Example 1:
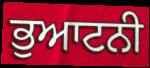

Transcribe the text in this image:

ਭੁਆਟਨੀ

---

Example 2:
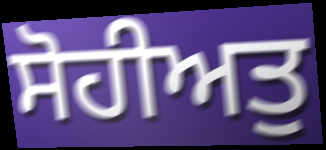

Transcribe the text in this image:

ਸੋਹੀਅਤੁ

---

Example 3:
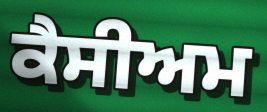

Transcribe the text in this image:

ਕੈਸੀਅਮ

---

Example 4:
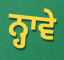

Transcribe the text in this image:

ਨ੍ਹਾਵੇ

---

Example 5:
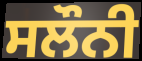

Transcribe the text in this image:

ਸਲੌਨੀ